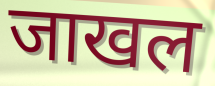
जाखल